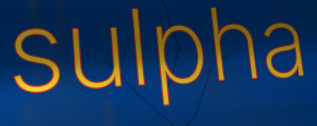
sulpha